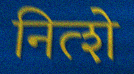
नित्शे